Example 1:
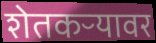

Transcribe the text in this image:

शेतकऱ्यावर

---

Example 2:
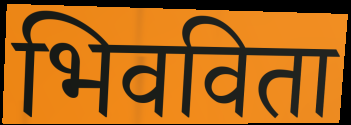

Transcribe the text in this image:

भिवविता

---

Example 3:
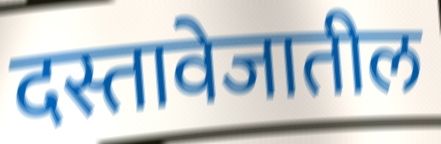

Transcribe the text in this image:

दस्तावेजातील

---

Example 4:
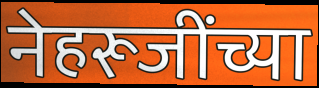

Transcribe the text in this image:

नेहरूजींच्या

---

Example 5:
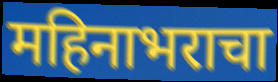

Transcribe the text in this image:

महिनाभराचा